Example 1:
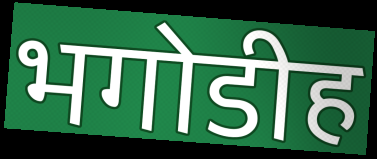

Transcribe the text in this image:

भगोडीह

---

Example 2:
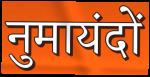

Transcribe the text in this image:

नुमायंदों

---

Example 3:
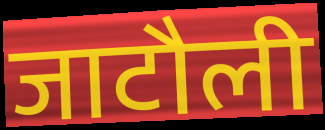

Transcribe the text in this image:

जाटौली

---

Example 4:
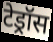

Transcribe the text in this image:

टेड्रॉस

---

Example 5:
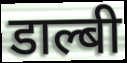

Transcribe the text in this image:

डाल्बी